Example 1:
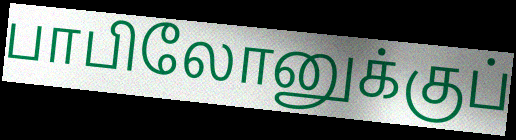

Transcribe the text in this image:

பாபிலோனுக்குப்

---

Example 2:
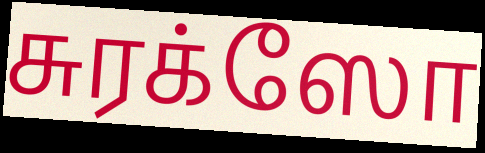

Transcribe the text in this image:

சுரக்ஸோ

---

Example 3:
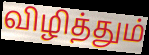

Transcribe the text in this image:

விழித்தும்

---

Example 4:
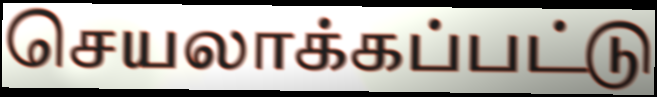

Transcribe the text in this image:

செயலாக்கப்பட்டு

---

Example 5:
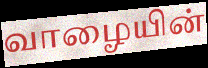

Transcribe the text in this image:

வாழையின்